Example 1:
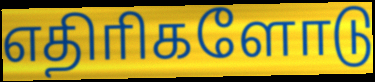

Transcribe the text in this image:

எதிரிகளோடு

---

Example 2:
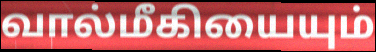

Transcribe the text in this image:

வால்மீகியையும்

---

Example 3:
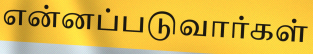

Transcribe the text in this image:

என்னப்படுவார்கள்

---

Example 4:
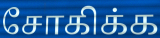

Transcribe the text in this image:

சோகிக்க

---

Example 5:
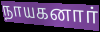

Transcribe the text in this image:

நாயகனார்